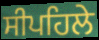
ਸੀਪਹਿਲੇ